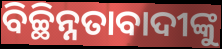
ବିଚ୍ଛିନ୍ନତାବାଦୀଙ୍କୁ